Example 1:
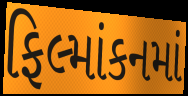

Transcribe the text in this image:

ફિલ્માંકનમાં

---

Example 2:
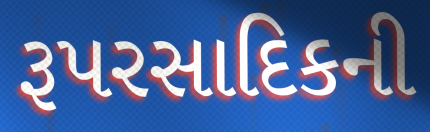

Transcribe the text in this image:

રૂપરસાદિકની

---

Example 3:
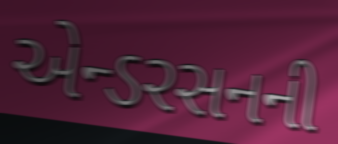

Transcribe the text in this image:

એન્ડરસનની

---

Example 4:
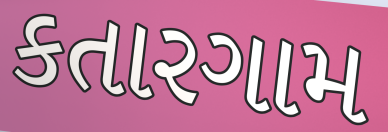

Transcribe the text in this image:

કતારગામ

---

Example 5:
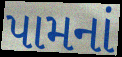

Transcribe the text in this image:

પામનાં